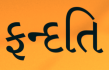
ફન્દતિ